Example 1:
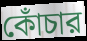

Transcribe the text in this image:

কোঁচার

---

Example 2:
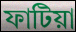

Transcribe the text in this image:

ফাটিয়া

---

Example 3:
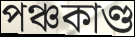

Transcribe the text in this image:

পঞ্চকাণ্ড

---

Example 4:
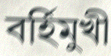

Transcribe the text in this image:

বর্হিমুখী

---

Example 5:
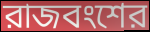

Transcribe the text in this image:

রাজবংশের